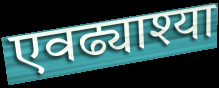
एवढ्याश्या